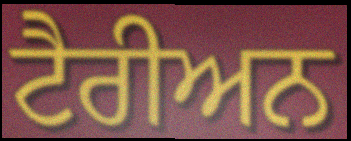
ਟੈਰੀਅਨ